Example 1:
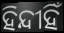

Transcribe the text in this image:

ହିନ୍ଦୀହିଁ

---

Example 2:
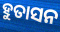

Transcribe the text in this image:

ହୁତାସନ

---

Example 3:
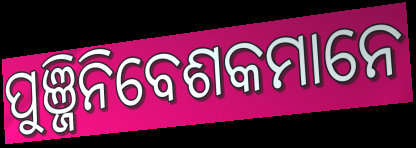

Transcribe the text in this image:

ପୁଞ୍ଜିନିବେଶକମାନେ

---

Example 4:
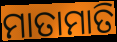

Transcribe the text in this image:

ମାତାମାତି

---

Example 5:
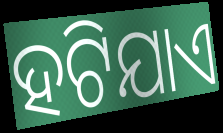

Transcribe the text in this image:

ହଟିଯାଏ